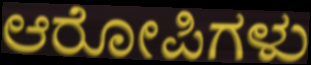
ಆರೋಪಿಗಳು